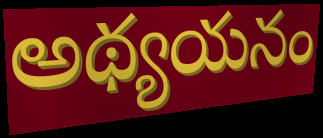
అథ్యయనం